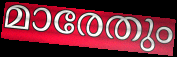
മാരേതും